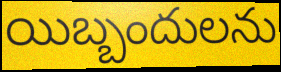
యిబ్బందులను